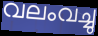
വലംവച്ചു